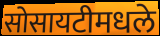
सोसायटीमधले